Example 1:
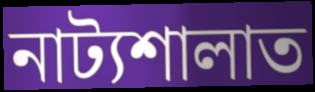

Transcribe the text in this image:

নাট্যশালাত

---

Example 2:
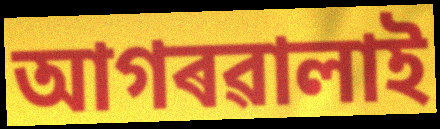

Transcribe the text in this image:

আগৰৱালাই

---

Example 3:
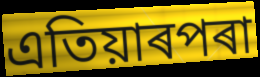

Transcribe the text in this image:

এতিয়াৰপৰা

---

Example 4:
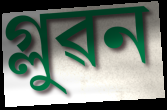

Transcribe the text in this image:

গ্লুৱন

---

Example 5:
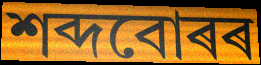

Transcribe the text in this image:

শব্দবোৰৰ